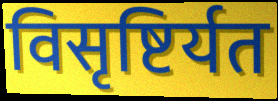
विसृष्टिर्यत